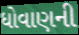
ધોવાણની